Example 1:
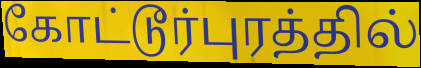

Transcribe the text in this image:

கோட்டூர்புரத்தில்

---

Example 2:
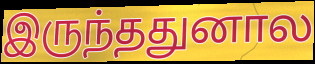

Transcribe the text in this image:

இருந்ததுனால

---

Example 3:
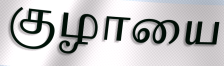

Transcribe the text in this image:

குழாயை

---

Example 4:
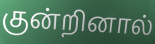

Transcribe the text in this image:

குன்றினால்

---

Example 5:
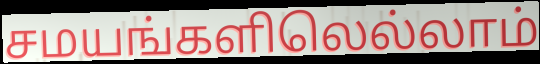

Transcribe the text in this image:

சமயங்களிலெல்லாம்